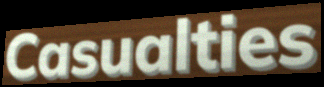
Casualties